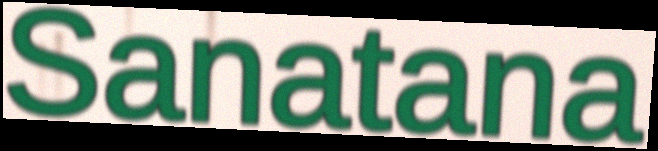
Sanatana